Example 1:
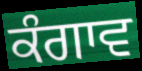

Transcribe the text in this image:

ਕੰਗਾਵ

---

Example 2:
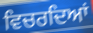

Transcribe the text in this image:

ਵਿਚਰਦਿਆਂ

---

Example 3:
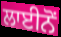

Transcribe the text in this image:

ਲਾਈਨੋਂ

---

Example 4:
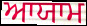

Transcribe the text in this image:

ਆਯਾਮ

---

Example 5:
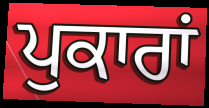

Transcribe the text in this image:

ਪੁਕਾਰਾਂ